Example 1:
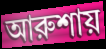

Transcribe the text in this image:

আরুশায়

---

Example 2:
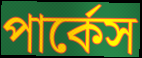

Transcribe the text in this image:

পার্কেস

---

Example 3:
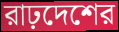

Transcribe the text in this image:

রাঢ়দেশের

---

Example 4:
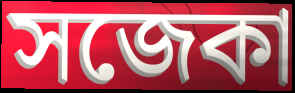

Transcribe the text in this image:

সজেকা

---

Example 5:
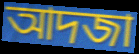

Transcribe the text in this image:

আদজা